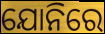
ଯୋନିରେ